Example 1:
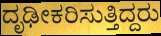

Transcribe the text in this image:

ದೃಢೀಕರಿಸುತ್ತಿದ್ದರು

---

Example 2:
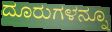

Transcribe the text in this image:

ದೂರುಗಳನ್ನೂ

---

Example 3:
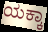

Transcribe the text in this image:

ಯಕ್ಕಾ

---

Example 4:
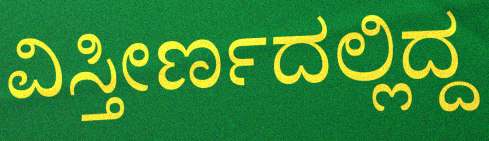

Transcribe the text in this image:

ವಿಸ್ತೀರ್ಣದಲ್ಲಿದ್ದ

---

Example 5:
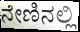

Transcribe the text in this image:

ನೇಣಿನಲ್ಲಿ